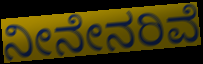
ನೀನೇನರಿವೆ